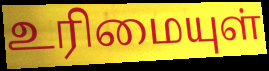
உரிமையுள்